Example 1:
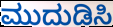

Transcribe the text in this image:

ಮುದುಡಿಸಿ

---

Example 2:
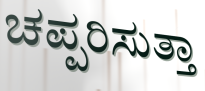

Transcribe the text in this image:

ಚಪ್ಪರಿಸುತ್ತಾ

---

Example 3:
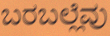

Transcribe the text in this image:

ಬರಬಲ್ಲೆವು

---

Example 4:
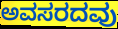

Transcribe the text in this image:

ಅವಸರದವು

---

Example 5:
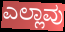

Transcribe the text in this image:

ಎಲ್ಲಾವು